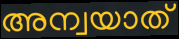
അന്വയാത്